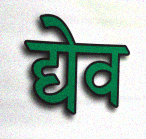
द्येव